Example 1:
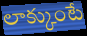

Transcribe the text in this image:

లాక్కుంటే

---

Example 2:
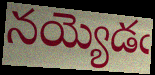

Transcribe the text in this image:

నయ్యెడఁ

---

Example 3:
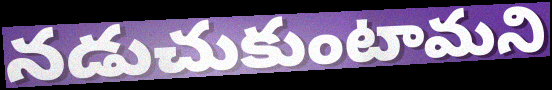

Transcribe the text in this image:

నడుచుకుంటామని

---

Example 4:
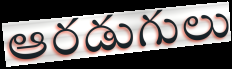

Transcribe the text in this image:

ఆరడుగులు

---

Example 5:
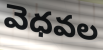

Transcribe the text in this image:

వెధవల